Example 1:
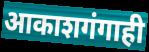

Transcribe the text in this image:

आकाशगंगाही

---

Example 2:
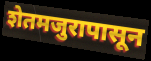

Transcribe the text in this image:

शेतमजुरापासून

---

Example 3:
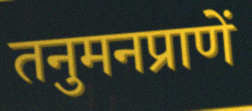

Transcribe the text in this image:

तनुमनप्राणें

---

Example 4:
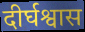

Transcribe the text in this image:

दीर्घश्वास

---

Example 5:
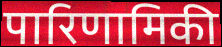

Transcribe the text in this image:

पारिणामिकी